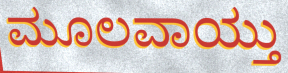
ಮೂಲವಾಯ್ತು